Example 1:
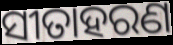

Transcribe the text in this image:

ସୀତାହରଣ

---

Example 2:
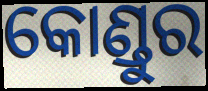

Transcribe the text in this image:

କୋଣ୍ଡୁର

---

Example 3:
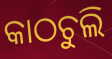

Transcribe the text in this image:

କାଠଚୁଲି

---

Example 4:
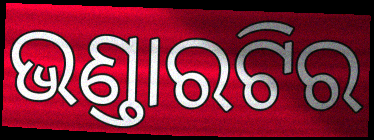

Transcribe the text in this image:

ଭଣ୍ଡାରଟିର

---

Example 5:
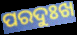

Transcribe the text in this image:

ପରଦୁଃଖ